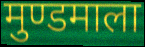
मुण्डमाला